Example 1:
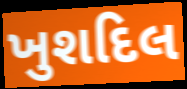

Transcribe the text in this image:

ખુશદિલ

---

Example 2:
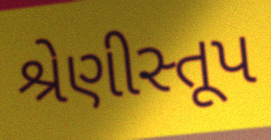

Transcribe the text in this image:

શ્રેણીસ્તૂપ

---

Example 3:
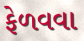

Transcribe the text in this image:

ફેળવવા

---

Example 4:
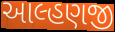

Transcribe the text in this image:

આલ્હણજી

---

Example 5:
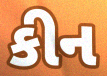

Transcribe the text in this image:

કીન